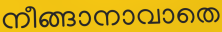
നീങ്ങാനാവാതെ